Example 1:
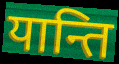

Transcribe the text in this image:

यान्ति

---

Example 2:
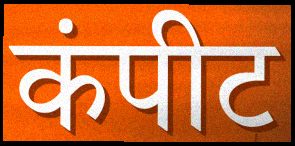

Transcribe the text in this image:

कंपीट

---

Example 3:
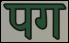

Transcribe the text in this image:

पग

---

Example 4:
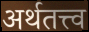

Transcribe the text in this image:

अर्थतत्त्व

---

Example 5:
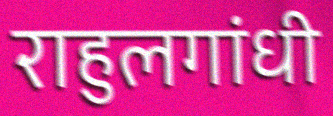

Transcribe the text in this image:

राहुलगांधी